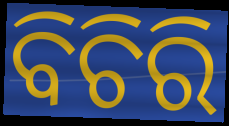
ବିଚିରି